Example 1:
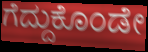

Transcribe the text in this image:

ಗೆದ್ದುಕೊಂಡೇ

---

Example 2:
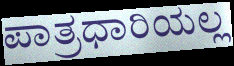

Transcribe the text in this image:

ಪಾತ್ರಧಾರಿಯಲ್ಲ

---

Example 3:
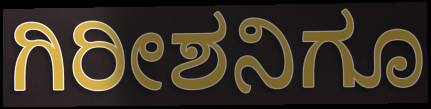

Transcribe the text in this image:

ಗಿರೀಶನಿಗೂ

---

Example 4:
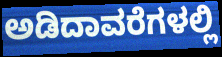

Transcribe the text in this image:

ಅಡಿದಾವರೆಗಳಲ್ಲಿ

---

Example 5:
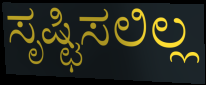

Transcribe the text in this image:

ಸೃಷ್ಟಿಸಲಿಲ್ಲ